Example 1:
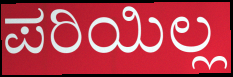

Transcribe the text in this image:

ಪರಿಯಿಲ್ಲ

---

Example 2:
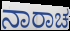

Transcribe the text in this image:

ನಾರಾಚ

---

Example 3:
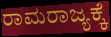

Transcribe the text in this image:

ರಾಮರಾಜ್ಯಕ್ಕೆ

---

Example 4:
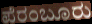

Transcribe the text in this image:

ಪೆರಂಬೂರು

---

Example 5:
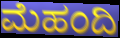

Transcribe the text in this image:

ಮೆಹಂದಿ